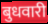
बुधवारी